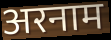
अरनाम